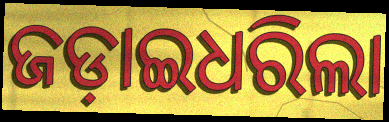
ଜଡ଼ାଇଧରିଲା